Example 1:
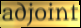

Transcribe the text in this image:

adjoint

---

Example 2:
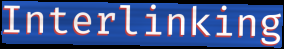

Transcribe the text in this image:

Interlinking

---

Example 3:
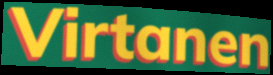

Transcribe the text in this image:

Virtanen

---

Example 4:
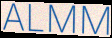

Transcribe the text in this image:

ALMM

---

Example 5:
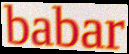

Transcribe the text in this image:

babar